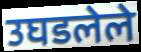
उघडलेले